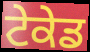
ਟੇਕੇਡ